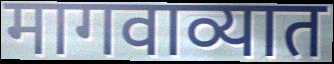
मागवाव्यात